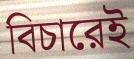
বিচারেই